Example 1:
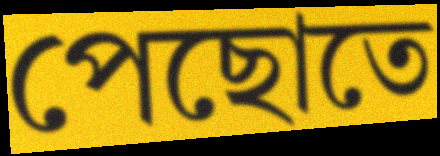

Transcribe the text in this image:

পেছোতে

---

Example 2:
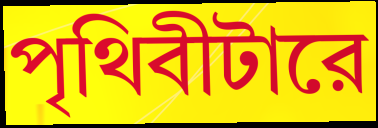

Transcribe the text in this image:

পৃথিবীটারে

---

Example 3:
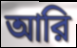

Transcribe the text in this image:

আরি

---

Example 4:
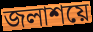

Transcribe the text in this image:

জলাশয়ে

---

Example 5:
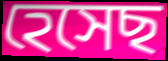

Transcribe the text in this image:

হেসেছ